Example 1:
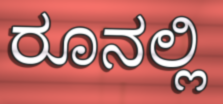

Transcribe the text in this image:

ರೂನಲ್ಲಿ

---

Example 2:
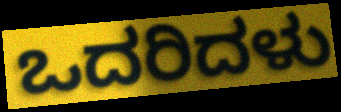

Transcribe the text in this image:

ಒದರಿದಳು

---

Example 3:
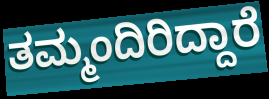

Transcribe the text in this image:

ತಮ್ಮಂದಿರಿದ್ದಾರೆ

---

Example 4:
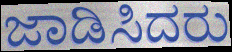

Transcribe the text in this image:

ಜಾಡಿಸಿದರು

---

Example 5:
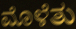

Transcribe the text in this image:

ಮೊಳೆತು